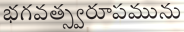
భగవత్స్వరూపమును